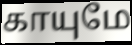
காயுமே